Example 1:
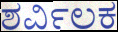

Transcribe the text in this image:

ಶರ್ವಿಲಕ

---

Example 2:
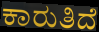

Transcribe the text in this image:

ಕಾರುತಿದೆ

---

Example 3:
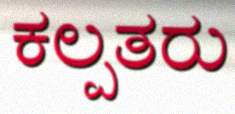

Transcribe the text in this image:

ಕಲ್ಪತರು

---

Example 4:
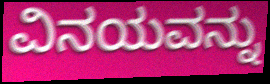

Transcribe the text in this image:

ವಿನಯವನ್ನು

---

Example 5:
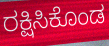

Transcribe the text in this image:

ರಕ್ಷಿಸಿಕೊಂಡ